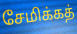
சேமிக்கத்